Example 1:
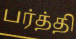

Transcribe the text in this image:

பர்த்தி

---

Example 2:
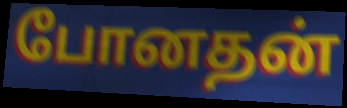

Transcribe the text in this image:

போனதன்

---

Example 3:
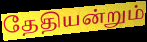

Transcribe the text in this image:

தேதியன்றும்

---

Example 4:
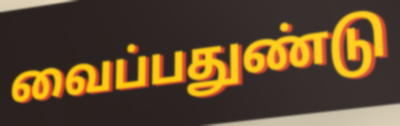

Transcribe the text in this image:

வைப்பதுண்டு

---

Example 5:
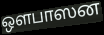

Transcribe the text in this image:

ஒளபாஸன